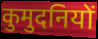
कुमुदनियों